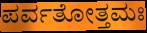
ಪರ್ವತೋತ್ತಮಃ